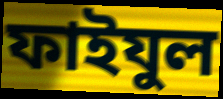
ফাইযুল